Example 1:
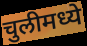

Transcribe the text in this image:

चुलीमध्ये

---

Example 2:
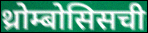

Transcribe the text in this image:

थ्रोम्बोसिसची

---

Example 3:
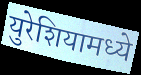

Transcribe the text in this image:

युरेशियामध्ये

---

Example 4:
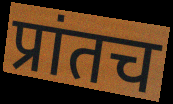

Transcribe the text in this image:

प्रांतच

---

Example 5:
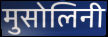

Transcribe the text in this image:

मुसोलिनी